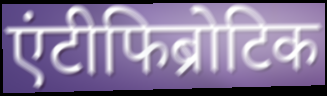
एंटीफिब्रोटिक